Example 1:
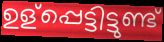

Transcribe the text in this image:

ഉള്പ്പെട്ടിട്ടുണ്ട്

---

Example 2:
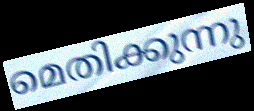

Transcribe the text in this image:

മെതിക്കുന്നു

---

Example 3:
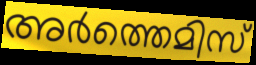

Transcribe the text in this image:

അർത്തെമിസ്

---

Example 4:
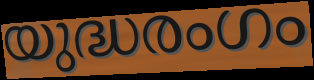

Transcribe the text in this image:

യുദ്ധരംഗം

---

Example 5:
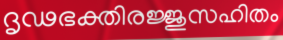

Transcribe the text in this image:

ദൃഢഭക്തിരജ്ജുസഹിതം